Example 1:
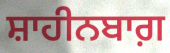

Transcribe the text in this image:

ਸ਼ਾਹੀਨਬਾਗ਼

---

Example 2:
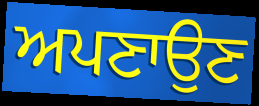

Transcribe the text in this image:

ਅਪਣਾਉਣ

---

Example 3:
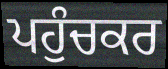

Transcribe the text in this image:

ਪਹੁੰਚਕਰ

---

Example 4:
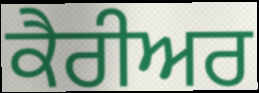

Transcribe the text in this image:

ਕੈਰੀਅਰ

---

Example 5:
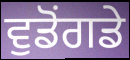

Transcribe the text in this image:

ਵੁਡੋਂਗਡੇ